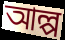
আল্প